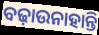
ବଢ଼ାଉନାହାନ୍ତି